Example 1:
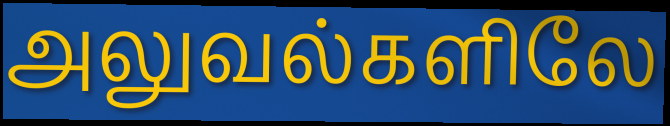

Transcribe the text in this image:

அலுவல்களிலே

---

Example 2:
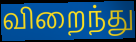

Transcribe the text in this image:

விறைந்து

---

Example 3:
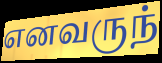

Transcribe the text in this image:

எனவருந்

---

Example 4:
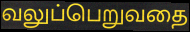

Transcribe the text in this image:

வலுப்பெறுவதை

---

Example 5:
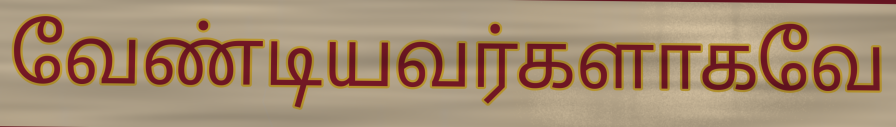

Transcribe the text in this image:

வேண்டியவர்களாகவே